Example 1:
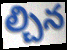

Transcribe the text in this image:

ల్చిన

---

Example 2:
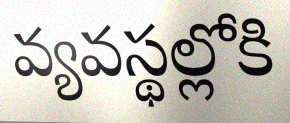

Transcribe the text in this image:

వ్యవస్థల్లోకి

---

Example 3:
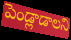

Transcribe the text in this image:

పెండ్లాడాలని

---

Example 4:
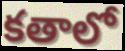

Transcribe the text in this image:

కతాలో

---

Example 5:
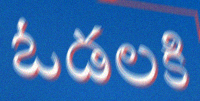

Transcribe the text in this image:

ఓడలకి